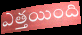
ఎత్తయింది